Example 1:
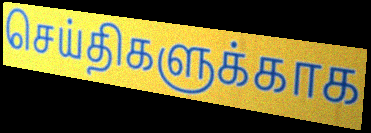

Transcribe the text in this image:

செய்திகளுக்காக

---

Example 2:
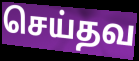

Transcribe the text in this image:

செய்தவ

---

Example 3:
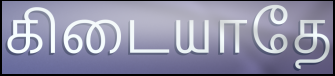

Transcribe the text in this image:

கிடையாதே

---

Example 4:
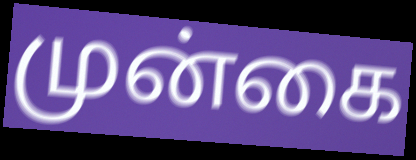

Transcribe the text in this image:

முன்கை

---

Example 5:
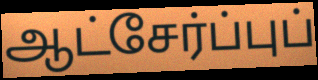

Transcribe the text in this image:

ஆட்சேர்ப்புப்